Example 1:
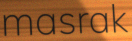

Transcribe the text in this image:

masrak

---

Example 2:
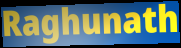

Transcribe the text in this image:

Raghunath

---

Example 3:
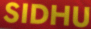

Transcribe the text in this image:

SIDHU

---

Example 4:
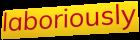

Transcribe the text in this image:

laboriously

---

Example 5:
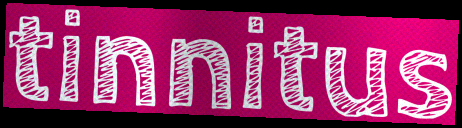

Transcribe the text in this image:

tinnitus